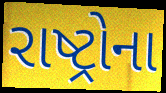
રાષ્ટ્રોના